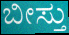
ಬೀಸ್ತು